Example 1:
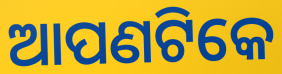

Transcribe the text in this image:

ଆପଣଟିକେ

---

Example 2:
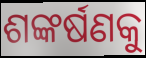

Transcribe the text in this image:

ଶଙ୍କର୍ଷଣକୁ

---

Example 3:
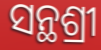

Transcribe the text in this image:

ସନ୍ଥଶ୍ରୀ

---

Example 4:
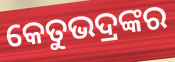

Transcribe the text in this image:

କେତୁଭଦ୍ରଙ୍କର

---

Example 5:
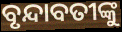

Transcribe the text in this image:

ବୃନ୍ଦାବତୀଙ୍କୁ